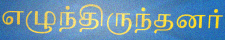
எழுந்திருந்தனர்